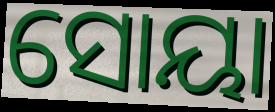
ସୋୟା